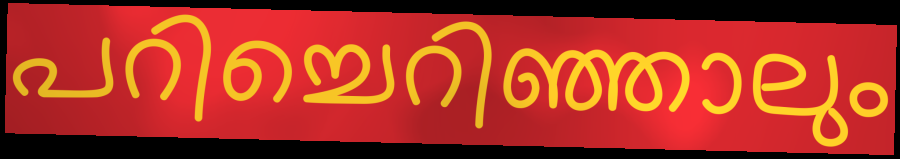
പറിച്ചെറിഞ്ഞാലും